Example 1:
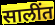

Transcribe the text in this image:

सालींत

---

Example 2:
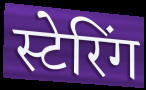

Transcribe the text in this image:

स्टेरिंग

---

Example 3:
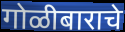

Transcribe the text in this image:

गोळीबाराचे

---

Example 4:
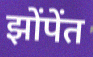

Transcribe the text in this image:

झोंपेंत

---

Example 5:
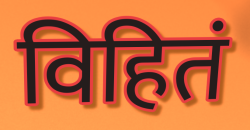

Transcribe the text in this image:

विहितं